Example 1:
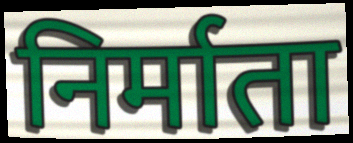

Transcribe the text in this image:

निर्माता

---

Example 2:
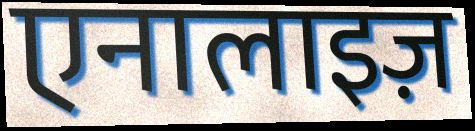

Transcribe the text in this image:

एनालाइज़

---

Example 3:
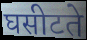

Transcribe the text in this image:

घसीटते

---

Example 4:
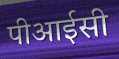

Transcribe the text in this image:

पीआईसी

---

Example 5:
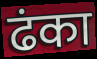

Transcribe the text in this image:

ढंका